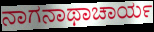
ನಾಗನಾಥಾಚಾರ್ಯ